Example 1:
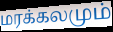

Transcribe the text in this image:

மரக்கலமும்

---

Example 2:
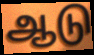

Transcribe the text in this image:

ஆடு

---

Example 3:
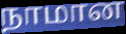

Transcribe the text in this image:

நாமான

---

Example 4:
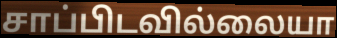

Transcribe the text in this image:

சாப்பிடவில்லையா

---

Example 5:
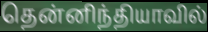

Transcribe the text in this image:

தென்னிந்தியாவில்